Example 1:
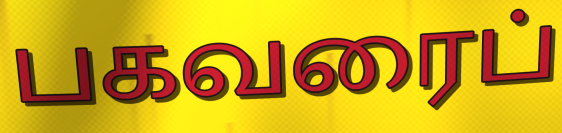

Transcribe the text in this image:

பகவரைப்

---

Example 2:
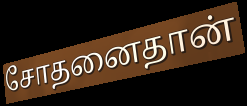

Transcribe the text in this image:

சோதனைதான்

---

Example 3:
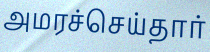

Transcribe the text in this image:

அமரச்செய்தார்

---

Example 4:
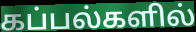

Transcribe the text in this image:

கப்பல்களில்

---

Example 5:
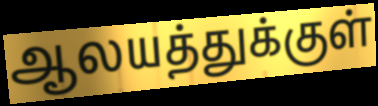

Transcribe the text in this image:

ஆலயத்துக்குள்